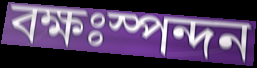
বক্ষঃস্পন্দন